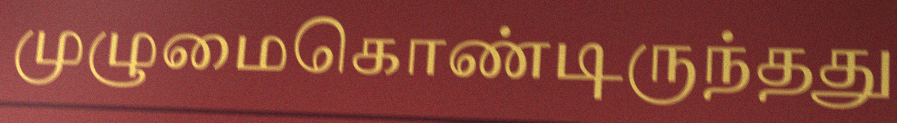
முழுமைகொண்டிருந்தது